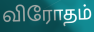
விரோதம்